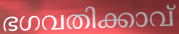
ഭഗവതിക്കാവ്